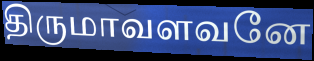
திருமாவளவனே